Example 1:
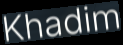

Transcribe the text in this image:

Khadim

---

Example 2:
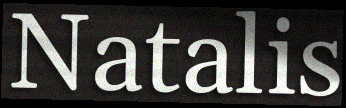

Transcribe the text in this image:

Natalis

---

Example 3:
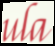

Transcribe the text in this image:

ula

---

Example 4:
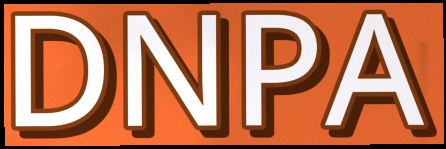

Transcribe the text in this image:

DNPA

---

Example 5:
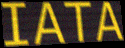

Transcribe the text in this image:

IATA